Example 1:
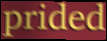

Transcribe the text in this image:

prided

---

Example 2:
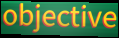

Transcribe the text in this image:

objective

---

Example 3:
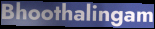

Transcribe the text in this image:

Bhoothalingam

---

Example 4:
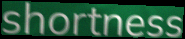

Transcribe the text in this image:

shortness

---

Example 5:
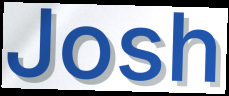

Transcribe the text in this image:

Josh